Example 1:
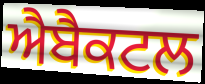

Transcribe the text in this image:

ਐਬੈਕਟਲ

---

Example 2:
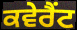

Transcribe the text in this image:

ਕਵੇਰੈਂਟ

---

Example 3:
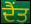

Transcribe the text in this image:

ਦੈਂਤ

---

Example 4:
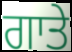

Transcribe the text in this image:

ਗਾਤੇ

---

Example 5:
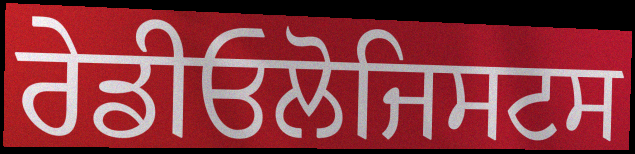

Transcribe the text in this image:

ਰੇਡੀਓਲੋਜਿਸਟਸ